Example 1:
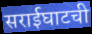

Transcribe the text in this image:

सराईघाटची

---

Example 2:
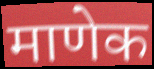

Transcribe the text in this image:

माणेक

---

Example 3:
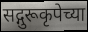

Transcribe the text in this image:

सद्गुरूकृपेच्या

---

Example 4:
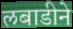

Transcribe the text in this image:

लबाडीने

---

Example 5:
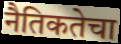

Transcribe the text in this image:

नैतिकतेचा